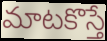
మాటకొస్తే